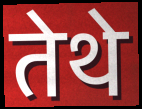
तेथे